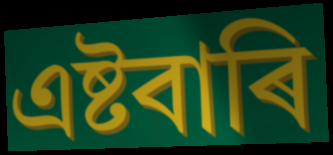
এষ্টবাৰি